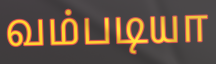
வம்படியா